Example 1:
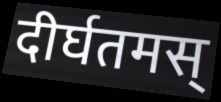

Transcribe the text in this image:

दीर्घतमस्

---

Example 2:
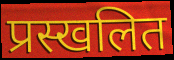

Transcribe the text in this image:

प्रस्खलित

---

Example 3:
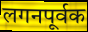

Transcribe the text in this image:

लगनपूर्वक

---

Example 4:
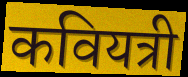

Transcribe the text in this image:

कवियत्री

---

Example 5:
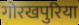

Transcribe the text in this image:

गोरखपुरिया